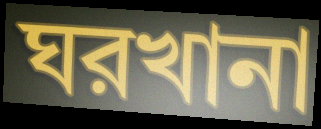
ঘরখানা